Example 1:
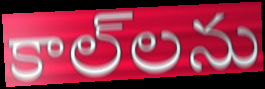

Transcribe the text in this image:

కాల్‌లను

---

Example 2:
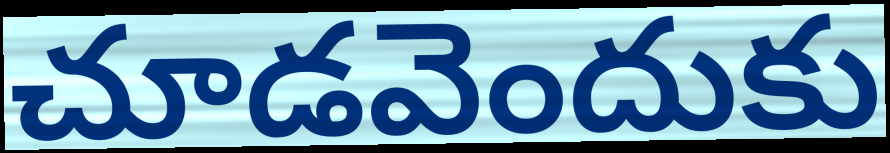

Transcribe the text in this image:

చూడవెందుకు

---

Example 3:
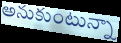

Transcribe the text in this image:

అనుకుంటున్నా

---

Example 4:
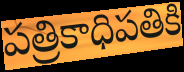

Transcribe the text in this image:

పత్రికాధిపతికి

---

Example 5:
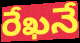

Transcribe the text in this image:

రేఖనే